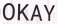
OKAY